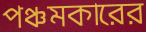
পঞ্চমকারের